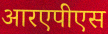
आरएपीएस